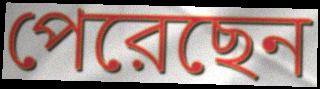
পেরেছেন